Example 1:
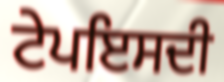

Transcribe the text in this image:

ਟੇਪਇਸਦੀ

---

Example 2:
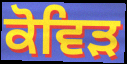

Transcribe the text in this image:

ਕੋਵਿਡ਼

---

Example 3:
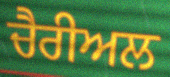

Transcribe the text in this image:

ਚੈਰੀਅਲ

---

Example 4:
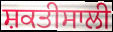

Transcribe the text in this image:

ਸ਼ਕਤੀਸਾਲੀ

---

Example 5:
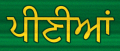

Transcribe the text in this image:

ਪੀਣੀਆਂ